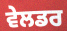
ਵੇਲਡਰ